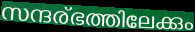
സന്ദര്ഭത്തിലേക്കും